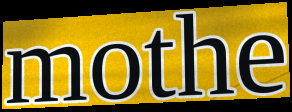
mothe